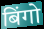
बिंगो